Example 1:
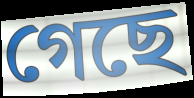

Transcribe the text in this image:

গেছে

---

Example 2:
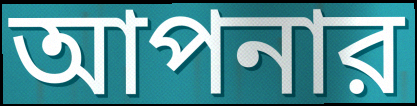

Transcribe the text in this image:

আপনার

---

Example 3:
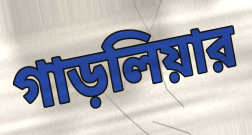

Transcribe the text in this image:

গাড়লিয়ার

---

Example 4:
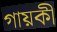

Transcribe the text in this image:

গায়কী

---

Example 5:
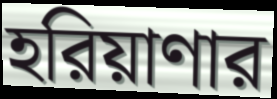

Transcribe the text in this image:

হরিয়াণার